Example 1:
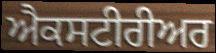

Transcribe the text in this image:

ਐਕਸਟੀਰੀਅਰ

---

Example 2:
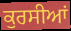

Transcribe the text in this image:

ਕੁਰਸੀਆਂ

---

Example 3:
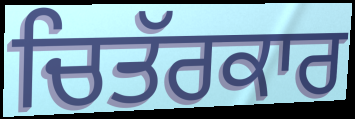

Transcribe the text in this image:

ਚਿਤੱਰਕਾਰ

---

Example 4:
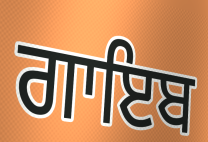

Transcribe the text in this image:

ਗਾਇਬ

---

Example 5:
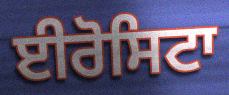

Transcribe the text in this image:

ਈਰੋਸਿਟਾ